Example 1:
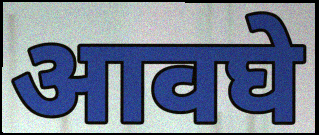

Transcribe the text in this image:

आवघे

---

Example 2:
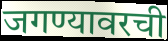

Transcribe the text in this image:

जगण्यावरची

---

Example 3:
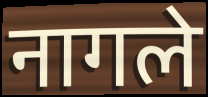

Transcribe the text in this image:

नागले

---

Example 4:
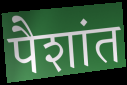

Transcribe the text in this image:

पैशांत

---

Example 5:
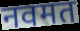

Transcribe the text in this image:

नवमत